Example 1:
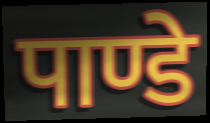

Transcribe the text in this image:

पाण्डे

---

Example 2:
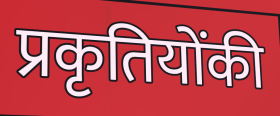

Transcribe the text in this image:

प्रकृतियोंकी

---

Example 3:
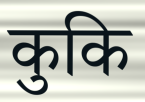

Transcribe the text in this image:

कुकि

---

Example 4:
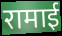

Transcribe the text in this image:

रामाई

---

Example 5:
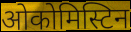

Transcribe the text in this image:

ओकोमिस्टिन